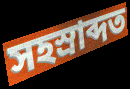
সহস্ৰাব্দত